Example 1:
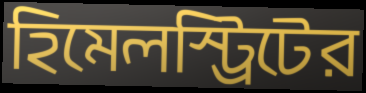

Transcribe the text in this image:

হিমেলস্ট্রিটের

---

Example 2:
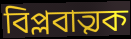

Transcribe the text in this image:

বিপ্লবাত্মক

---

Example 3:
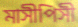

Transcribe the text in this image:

মাসীপিসী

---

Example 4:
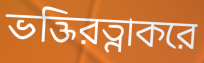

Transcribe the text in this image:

ভক্তিরত্নাকরে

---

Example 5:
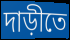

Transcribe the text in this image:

দাড়ীতে